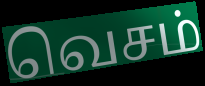
வெசம்